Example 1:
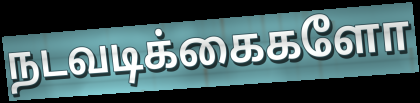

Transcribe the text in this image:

நடவடிக்கைகளோ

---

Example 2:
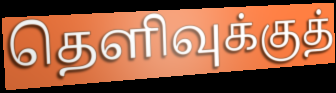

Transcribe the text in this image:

தெளிவுக்குத்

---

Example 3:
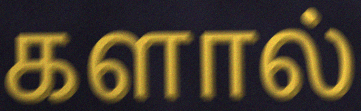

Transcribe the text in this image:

களால்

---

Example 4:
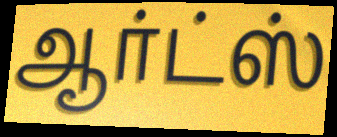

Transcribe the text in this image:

ஆர்ட்ஸ்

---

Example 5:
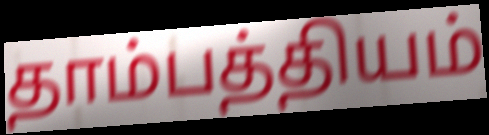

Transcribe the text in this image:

தாம்பத்தியம்